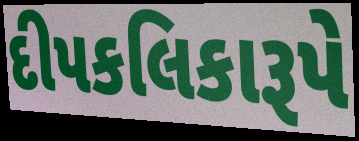
દીપકલિકારૂપે